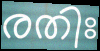
രതിഃ